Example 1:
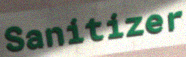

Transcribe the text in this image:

Sanitizer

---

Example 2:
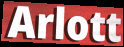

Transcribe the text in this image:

Arlott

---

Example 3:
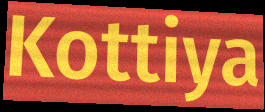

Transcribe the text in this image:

Kottiya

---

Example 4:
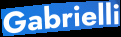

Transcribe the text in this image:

Gabrielli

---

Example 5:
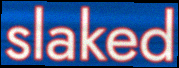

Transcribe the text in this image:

slaked